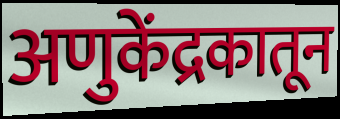
अणुकेंद्रकातून